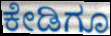
ಕೇಡಿಗೂ